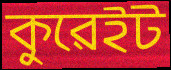
কুৱেইট